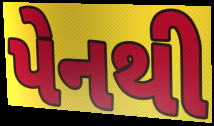
પેનથી